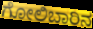
ಗೋಲಿಬಾರಿನ